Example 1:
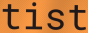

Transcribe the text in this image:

tist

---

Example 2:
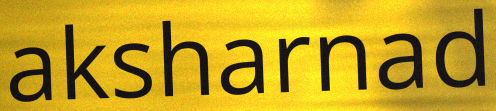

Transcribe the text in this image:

aksharnad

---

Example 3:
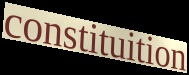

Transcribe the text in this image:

constituition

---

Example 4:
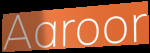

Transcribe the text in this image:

Aaroor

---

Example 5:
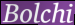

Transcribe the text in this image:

Bolchi